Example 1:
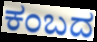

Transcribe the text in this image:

ಕಂಬದ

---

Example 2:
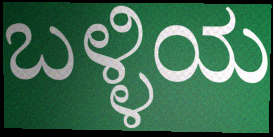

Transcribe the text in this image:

ಬಳ್ಳಿಯ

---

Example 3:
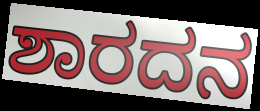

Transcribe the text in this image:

ಶಾರದನ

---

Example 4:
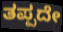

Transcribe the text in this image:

ತಪ್ಪದೇ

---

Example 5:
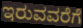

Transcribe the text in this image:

ಇರುವವರೆಗೆ